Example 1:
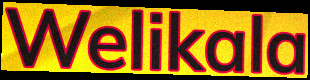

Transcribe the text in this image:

Welikala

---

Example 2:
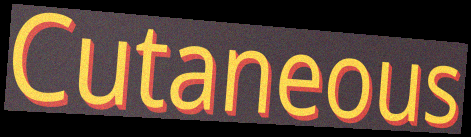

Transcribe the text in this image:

Cutaneous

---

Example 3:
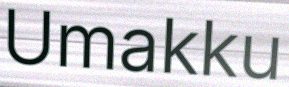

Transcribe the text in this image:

Umakku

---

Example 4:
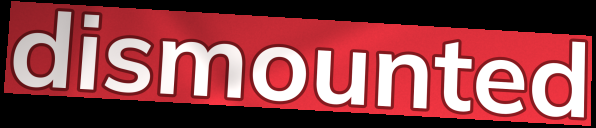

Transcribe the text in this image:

dismounted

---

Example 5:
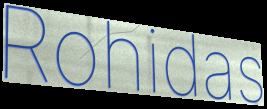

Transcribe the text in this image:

Rohidas